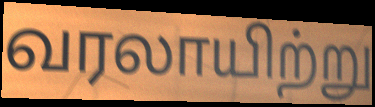
வரலாயிற்று